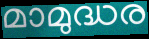
മാമുദ്ധര